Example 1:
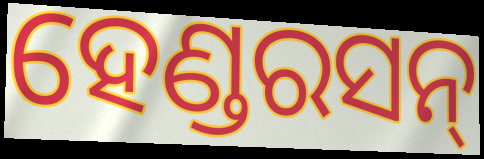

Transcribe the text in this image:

ହେଣ୍ଡରସନ୍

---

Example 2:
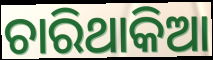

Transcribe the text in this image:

ଚାରିଥାକିଆ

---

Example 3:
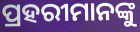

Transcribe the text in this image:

ପ୍ରହରୀମାନଙ୍କୁ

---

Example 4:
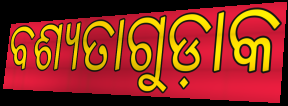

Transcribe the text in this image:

ବଶ୍ୟତାଗୁଡ଼ାକ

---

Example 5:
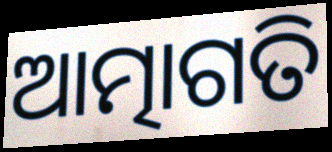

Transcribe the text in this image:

ଆତ୍ମାଗତି